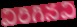
విరిగినవి